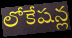
లోకేషన్ల